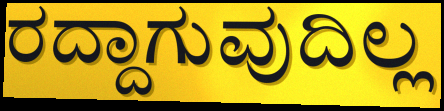
ರದ್ದಾಗುವುದಿಲ್ಲ